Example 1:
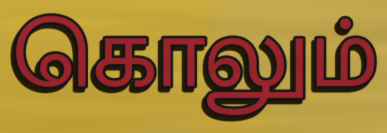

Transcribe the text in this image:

கொலும்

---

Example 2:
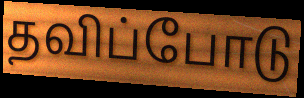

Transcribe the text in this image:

தவிப்போடு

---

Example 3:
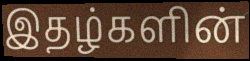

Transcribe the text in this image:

இதழ்களின்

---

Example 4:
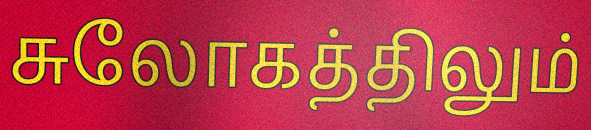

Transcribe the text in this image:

சுலோகத்திலும்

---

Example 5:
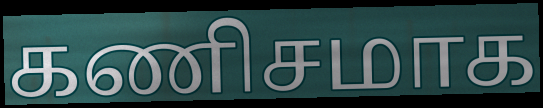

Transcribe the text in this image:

கணிசமாக